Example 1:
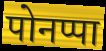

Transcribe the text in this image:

पोनप्पा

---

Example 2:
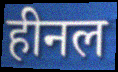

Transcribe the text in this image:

हीनल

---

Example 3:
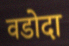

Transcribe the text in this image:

वडोदा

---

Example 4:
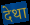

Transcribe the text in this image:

देथा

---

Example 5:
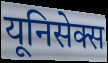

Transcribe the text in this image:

यूनिसेक्स